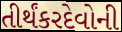
તીર્થંકરદેવોની